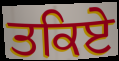
ਤਕਿਏ